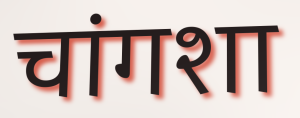
चांगशा